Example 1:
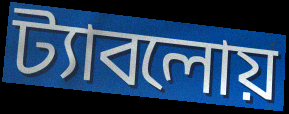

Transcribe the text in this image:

ট্যাবলোয়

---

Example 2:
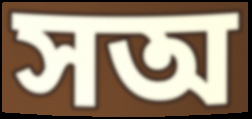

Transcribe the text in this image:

সঅ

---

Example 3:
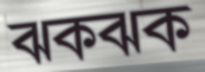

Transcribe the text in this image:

ঝকঝক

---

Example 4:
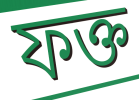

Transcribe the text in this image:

ফক্ত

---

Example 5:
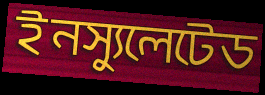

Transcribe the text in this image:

ইনস্যুলেটেড